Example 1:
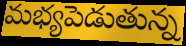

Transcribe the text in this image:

మభ్యపెడుతున్న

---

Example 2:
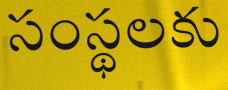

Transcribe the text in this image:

సంస్థలకు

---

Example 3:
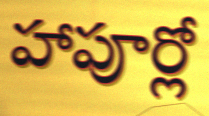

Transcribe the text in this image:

హాపూర్లో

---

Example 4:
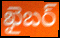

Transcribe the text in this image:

ఖైబర్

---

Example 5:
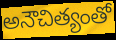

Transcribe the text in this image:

అనౌచిత్యంతో